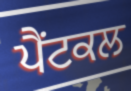
ਪੈਂਟਕਲ